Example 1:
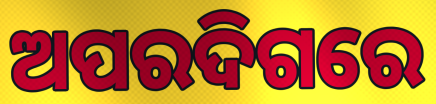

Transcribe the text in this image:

ଅପରଦିଗରେ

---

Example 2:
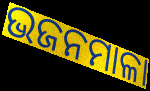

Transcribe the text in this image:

ଭଜନମାଳା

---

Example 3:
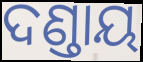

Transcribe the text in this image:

ଦଣ୍ଡାୟ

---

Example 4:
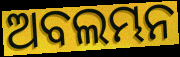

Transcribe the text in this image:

ଅବଲମ୍ଭନ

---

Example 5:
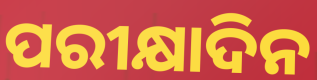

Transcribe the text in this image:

ପରୀକ୍ଷାଦିନ